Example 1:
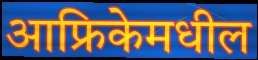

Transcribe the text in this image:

आफ्रिकेमधील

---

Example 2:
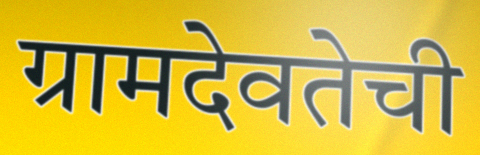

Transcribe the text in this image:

ग्रामदेवतेची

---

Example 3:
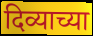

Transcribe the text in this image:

दिव्याच्या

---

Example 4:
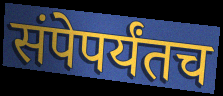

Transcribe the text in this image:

संपेपर्यंतच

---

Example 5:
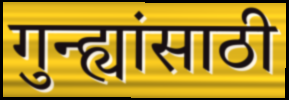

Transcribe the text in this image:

गुन्ह्यांसाठी